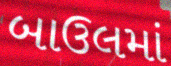
બાઉલમાં